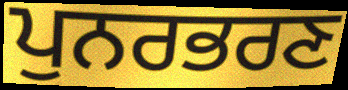
ਪੁਨਰਭਰਣ